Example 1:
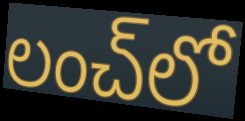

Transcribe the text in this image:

లంచ్‌లో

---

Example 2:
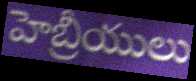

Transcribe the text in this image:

హెబ్రీయులు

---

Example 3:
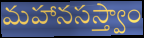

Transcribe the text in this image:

మహానసస్త్వాం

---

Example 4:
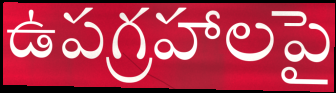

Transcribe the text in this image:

ఉపగ్రహాలపై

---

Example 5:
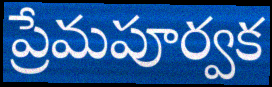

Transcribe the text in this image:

ప్రేమపూర్వక